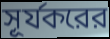
সূর্যকরের